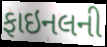
ફાઇનલની